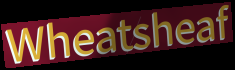
Wheatsheaf